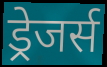
ड्रेजर्स